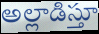
అల్లాడిస్తూ